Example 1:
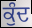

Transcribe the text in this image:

ਕੁੰਦ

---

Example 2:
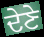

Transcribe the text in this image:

ਦੇਣੇ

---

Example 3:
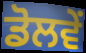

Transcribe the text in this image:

ਡੋਲਵੇਂ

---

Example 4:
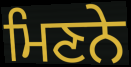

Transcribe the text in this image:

ਮਿਣਨੇ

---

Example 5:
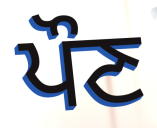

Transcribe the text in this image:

ਪੌਣ